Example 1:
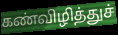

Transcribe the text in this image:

கண்விழித்துச்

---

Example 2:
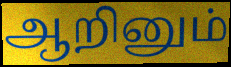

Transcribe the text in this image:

ஆறினும்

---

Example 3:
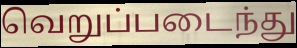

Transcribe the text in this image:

வெறுப்படைந்து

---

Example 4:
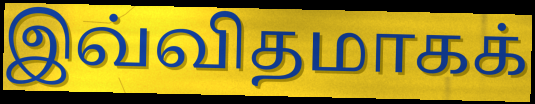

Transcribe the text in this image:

இவ்விதமாகக்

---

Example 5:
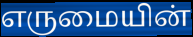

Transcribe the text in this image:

எருமையின்